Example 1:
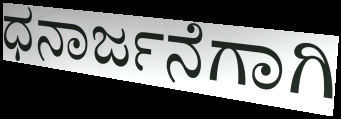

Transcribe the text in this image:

ಧನಾರ್ಜನೆಗಾಗಿ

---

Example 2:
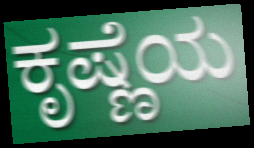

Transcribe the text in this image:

ಕೃಷ್ಣೆಯ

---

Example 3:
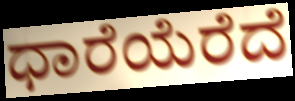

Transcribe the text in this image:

ಧಾರೆಯೆರೆದೆ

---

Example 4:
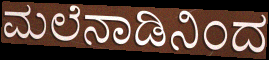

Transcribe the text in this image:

ಮಲೆನಾಡಿನಿಂದ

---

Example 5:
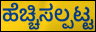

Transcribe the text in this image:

ಹೆಚ್ಚಿಸಲ್ಪಟ್ಟ